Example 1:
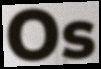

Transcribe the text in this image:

Os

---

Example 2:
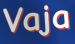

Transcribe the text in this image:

Vaja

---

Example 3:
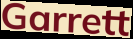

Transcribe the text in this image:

Garrett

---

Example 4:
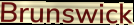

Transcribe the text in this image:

Brunswick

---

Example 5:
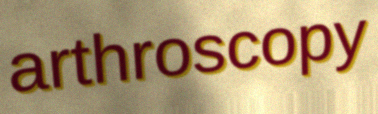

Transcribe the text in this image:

arthroscopy